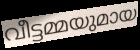
വീട്ടമ്മയുമായ